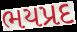
ભયપ્રદ